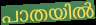
പാതയിൽ